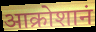
आक्रोशानं